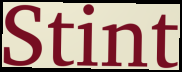
Stint